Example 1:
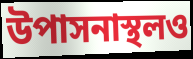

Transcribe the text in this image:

উপাসনাস্থলও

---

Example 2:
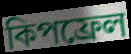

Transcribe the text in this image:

কিপফ্রেল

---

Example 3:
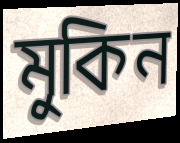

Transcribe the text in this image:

মুকিন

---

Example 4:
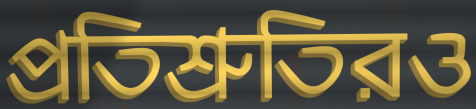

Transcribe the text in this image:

প্রতিশ্রুতিরও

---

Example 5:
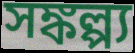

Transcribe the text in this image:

সঙ্কল্প্য